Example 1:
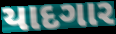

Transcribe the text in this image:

યાદગાર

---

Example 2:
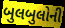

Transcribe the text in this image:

બુલબુલોની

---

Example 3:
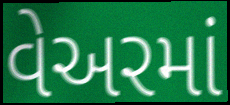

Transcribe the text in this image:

વેઅરમાં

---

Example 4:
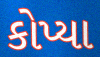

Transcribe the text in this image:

કોપ્યા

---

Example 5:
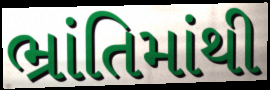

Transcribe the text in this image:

ભ્રાંતિમાંથી